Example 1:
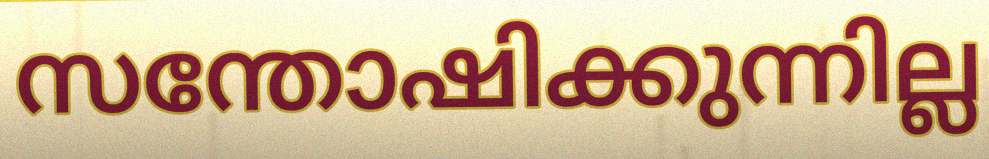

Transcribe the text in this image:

സന്തോഷിക്കുന്നില്ല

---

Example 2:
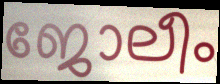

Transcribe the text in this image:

ജോലീം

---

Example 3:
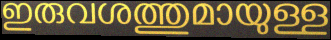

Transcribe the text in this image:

ഇരുവശത്തുമായുള്ള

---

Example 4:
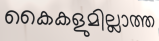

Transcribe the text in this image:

കൈകളുമില്ലാത്ത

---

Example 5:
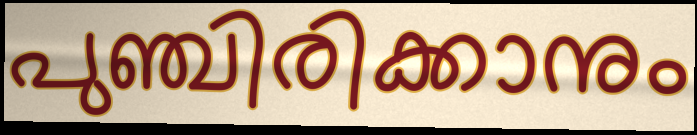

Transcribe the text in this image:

പുഞ്ചിരിക്കാനും